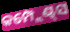
କମ୍ପ୍ଲେଣ୍ଟ୍‌ସ